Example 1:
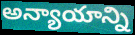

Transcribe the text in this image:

అన్యాయాన్ని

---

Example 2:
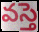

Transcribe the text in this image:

వస్తె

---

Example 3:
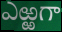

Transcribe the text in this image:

ఎఱ్ఱగా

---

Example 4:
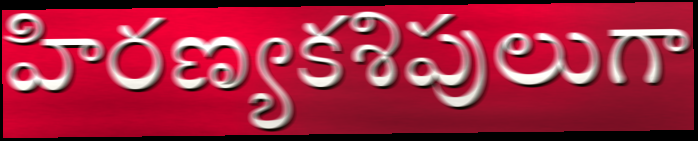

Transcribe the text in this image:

హిరణ్యకశిపులుగా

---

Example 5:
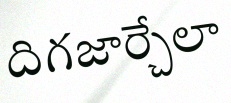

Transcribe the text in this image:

దిగజార్చేలా